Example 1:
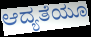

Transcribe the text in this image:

ಆದ್ಯತೆಯೂ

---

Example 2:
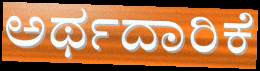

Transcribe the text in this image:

ಅರ್ಥದಾರಿಕೆ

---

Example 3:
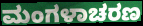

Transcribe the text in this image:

ಮಂಗಳಾಚರಣ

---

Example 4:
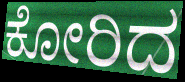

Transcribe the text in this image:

ಕೋರಿದ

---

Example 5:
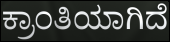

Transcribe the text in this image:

ಕ್ರಾಂತಿಯಾಗಿದೆ